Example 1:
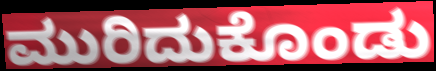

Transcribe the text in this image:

ಮುರಿದುಕೊಂಡು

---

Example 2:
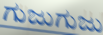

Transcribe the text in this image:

ಗುಜುಗುಜು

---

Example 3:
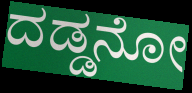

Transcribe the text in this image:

ದಡ್ಡನೋ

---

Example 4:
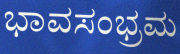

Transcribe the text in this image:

ಭಾವಸಂಭ್ರಮ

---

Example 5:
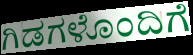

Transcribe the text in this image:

ಗಿಡಗಳೊಂದಿಗೆ